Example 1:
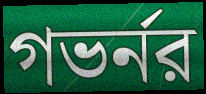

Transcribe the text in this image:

গভর্নর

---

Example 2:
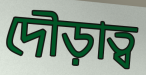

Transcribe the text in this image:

দৌড়াত্ব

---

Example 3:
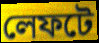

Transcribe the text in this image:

লেফটে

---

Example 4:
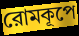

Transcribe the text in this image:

রোমকূপে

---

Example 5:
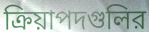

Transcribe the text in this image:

ক্রিয়াপদগুলির